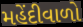
મહેંદીવાળો